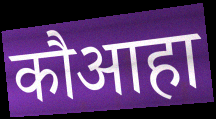
कौआहा